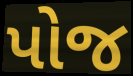
પોજ